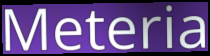
Meteria